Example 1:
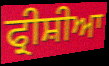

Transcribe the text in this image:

ਫ੍ਰੀਸ਼ੀਆ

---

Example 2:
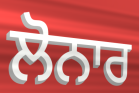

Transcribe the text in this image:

ਲੋਨਾਰ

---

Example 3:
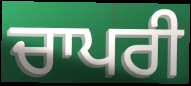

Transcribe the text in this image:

ਚਾਪਰੀ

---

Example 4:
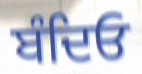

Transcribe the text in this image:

ਬੰਦਿਓ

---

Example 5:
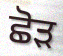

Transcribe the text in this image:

ਛੋੜ